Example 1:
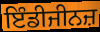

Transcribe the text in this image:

ਇੰਡੀਜੀਨਜ਼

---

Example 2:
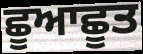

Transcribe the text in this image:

ਛੂਆਛੂਤ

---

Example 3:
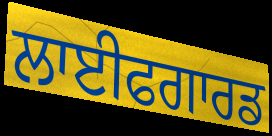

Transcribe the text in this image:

ਲਾਈਫਗਾਰਡ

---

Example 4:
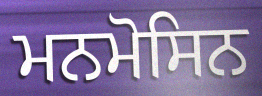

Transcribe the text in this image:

ਮਨਮੋਸਿਨ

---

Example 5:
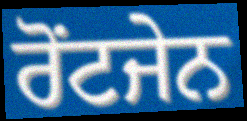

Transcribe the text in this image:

ਰੋਂਟਜੇਨ